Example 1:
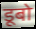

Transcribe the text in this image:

डूबो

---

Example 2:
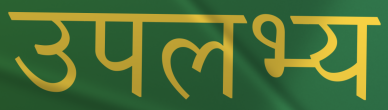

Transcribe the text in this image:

उपलभ्य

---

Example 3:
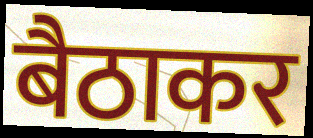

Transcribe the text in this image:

बैठाकर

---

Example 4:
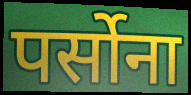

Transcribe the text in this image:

पर्सोना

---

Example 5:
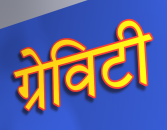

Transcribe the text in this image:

ग्रेविटी